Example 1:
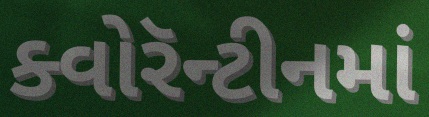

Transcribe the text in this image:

ક્વોરૅન્ટીનમાં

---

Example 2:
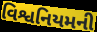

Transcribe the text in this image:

વિશ્વનિયમની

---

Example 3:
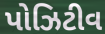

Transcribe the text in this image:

પોઝિટીવ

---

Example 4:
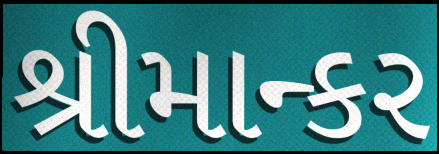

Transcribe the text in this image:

શ્રીમાન્કર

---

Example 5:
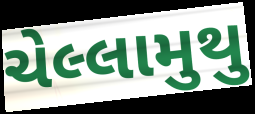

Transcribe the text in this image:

ચેલ્લામુથુ